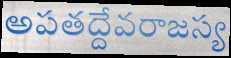
అపతద్దేవరాజస్య